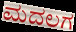
ಮದಲಗ